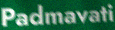
Padmavati